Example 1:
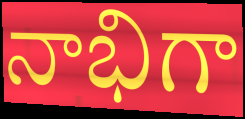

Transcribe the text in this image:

నాభిగా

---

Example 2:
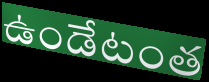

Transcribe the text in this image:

ఉండేటంత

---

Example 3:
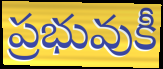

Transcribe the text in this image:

ప్రభువుకీ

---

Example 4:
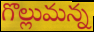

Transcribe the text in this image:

గొల్లుమన్న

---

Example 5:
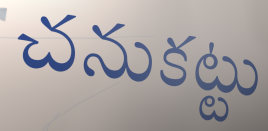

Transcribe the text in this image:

చనుకట్టు